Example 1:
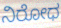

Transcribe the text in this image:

ನಿರೋಧ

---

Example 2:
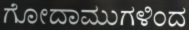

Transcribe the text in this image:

ಗೋದಾಮುಗಳಿಂದ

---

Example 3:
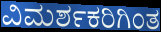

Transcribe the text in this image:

ವಿಮರ್ಶಕರಿಗಿಂತ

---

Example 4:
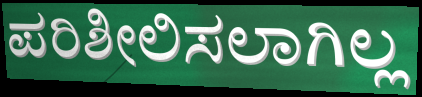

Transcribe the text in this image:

ಪರಿಶೀಲಿಸಲಾಗಿಲ್ಲ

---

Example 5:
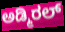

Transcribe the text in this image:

ಅಡ್ಮಿರಲ್